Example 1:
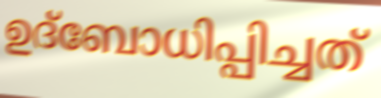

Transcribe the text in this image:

ഉദ്ബോധിപ്പിച്ചത്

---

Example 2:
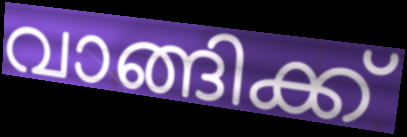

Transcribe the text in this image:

വാങ്ങിക്ക്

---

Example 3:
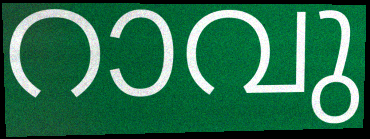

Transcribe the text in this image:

റാവു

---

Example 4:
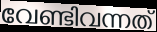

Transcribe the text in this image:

വേണ്ടിവന്നത്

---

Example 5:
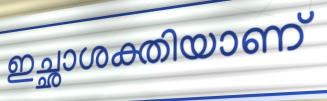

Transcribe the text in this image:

ഇച്ഛാശക്തിയാണ്